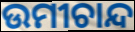
ଉମୀଚାନ୍ଦ